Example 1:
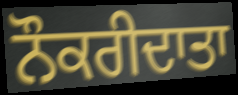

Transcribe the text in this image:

ਨੌਕਰੀਦਾਤਾ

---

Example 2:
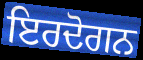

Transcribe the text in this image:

ਇਰਦੋਗਨ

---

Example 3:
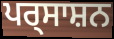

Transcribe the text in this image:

ਪਰ੍ਸਾਸ਼ਨ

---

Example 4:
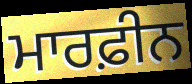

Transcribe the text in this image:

ਮਾਰਫ਼ੀਨ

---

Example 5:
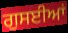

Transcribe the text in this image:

ਗੁਸਈਆਂ